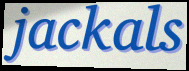
jackals